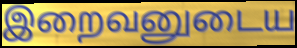
இறைவனுடைய